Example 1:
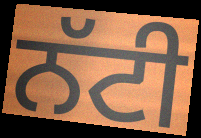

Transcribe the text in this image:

ਨੱਟੀ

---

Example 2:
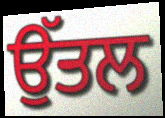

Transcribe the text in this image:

ਉੱਤਲ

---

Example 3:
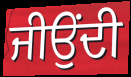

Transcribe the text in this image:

ਜੀਉਂਦੀ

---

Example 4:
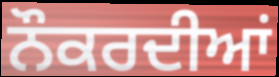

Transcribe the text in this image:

ਨੌਕਰਦੀਆਂ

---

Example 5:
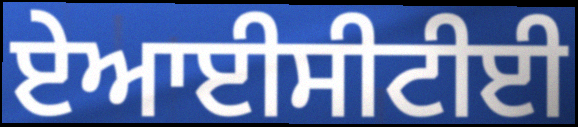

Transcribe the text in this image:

ਏਆਈਸੀਟੀਈ